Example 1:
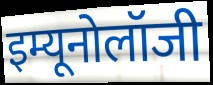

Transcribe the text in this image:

इम्यूनोलॉजी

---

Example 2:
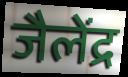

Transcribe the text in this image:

जैलेंद्र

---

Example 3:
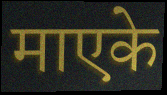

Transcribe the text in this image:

माएके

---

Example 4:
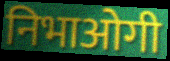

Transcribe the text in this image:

निभाओगी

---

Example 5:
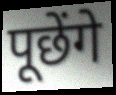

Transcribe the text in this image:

पूछेंगे